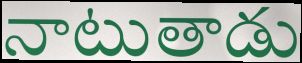
నాటుతాడు